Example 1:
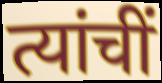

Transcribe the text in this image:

त्यांचीं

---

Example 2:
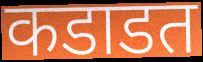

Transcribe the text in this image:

कडाडत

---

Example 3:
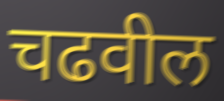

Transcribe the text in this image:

चढवील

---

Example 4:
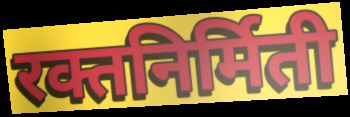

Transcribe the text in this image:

रक्तनिर्मिती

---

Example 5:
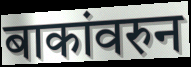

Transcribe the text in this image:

बाकांवरुन